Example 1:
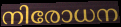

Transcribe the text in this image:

നിരോധന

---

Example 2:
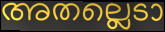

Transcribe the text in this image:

അതല്ലെടാ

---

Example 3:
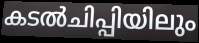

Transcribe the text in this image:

കടൽചിപ്പിയിലും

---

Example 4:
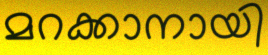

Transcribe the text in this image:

മറക്കാനായി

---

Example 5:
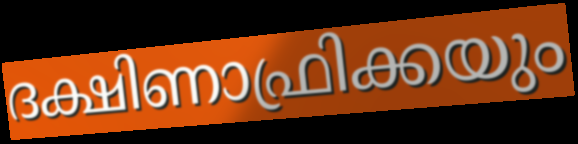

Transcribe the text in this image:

ദക്ഷിണാഫ്രിക്കയും